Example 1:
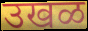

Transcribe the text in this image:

उखळ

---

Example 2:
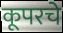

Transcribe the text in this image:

कूपरचे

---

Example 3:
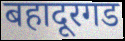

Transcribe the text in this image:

बहादूरगड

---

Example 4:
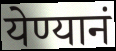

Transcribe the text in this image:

येण्यानं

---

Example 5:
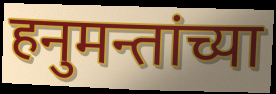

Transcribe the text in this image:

हनुमन्तांच्या